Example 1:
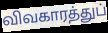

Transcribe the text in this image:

விவகாரத்துப்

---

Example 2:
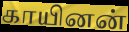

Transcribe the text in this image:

காயினன்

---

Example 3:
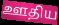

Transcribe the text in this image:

ஊதிய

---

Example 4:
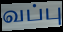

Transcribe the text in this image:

வப்பு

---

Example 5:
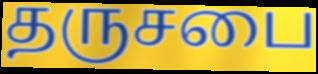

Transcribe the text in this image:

தருசபை